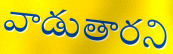
వాడుతారని